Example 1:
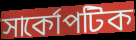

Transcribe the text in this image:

সার্কোপটিক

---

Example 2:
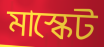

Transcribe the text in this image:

মাস্কেট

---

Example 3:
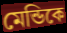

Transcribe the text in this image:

মেন্ডিকে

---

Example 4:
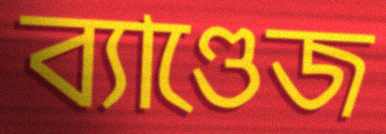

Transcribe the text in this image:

ব্যাণ্ডেজ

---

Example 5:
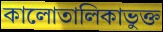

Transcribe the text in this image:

কালোতালিকাভুক্ত